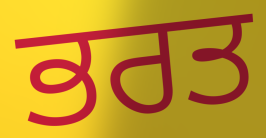
ਭਰਤ